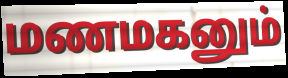
மணமகனும்